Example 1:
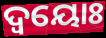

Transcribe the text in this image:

ଦ୍ବୟୋଃ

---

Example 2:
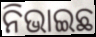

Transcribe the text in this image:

ନିଭାଇଛ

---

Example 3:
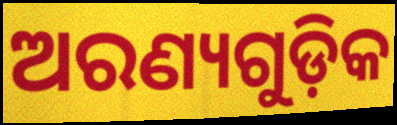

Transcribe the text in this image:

ଅରଣ୍ୟଗୁଡ଼ିକ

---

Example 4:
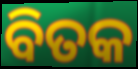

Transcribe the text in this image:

ବିତକ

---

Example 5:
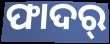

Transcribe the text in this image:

ଫାଦର୍